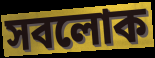
সবলোক